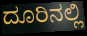
ದೂರಿನಲ್ಲಿ